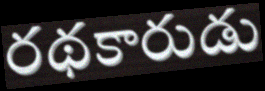
రథకారుడు